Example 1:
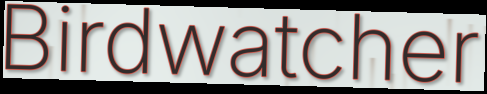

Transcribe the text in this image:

Birdwatcher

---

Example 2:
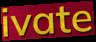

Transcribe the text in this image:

ivate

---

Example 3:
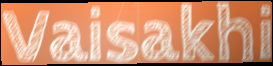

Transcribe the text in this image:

Vaisakhi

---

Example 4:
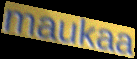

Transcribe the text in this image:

maukaa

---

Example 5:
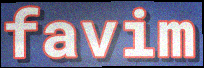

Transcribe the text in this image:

favim